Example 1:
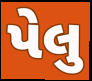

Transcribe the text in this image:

પેલુ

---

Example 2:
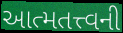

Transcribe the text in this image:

આત્મતત્ત્વની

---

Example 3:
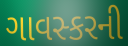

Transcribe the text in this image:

ગાવસ્કરની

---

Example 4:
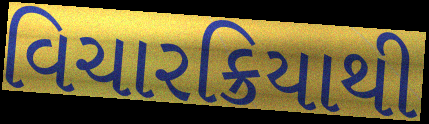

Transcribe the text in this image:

વિચારક્રિયાથી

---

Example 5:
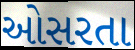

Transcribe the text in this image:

ઓસરતા